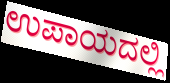
ಉಪಾಯದಲ್ಲಿ